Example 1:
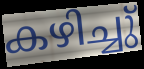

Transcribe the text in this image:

കഴിച്ചു്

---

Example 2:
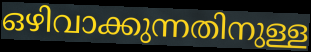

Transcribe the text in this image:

ഒഴിവാക്കുന്നതിനുള്ള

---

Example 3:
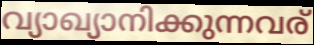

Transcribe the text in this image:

വ്യാഖ്യാനിക്കുന്നവര്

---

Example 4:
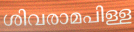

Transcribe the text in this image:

ശിവരാമപിള്ള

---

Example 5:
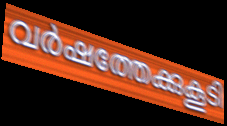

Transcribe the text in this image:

വർഷത്തേക്കുകൂടി